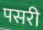
पसरी